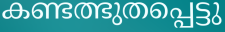
കണ്ടത്ഭുതപ്പെട്ടു